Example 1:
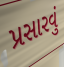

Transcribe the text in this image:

પ્રસારવું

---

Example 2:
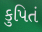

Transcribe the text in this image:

કુપિતં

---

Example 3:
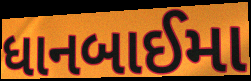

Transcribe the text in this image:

ધાનબાઈમા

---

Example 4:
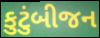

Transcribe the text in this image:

કુટુંબીજન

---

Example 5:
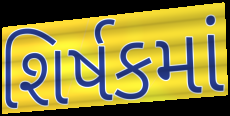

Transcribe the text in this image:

શિર્ષકમાં